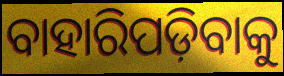
ବାହାରିପଡ଼ିବାକୁ